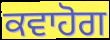
ਕਵਾਹੋਗ